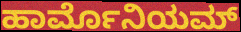
ಹಾರ್ಮೊನಿಯಮ್